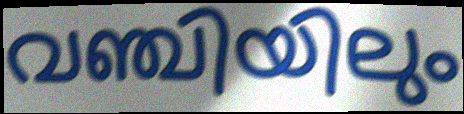
വഞ്ചിയിലും